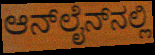
ಆನ್‌ಲೈನ್‌ನಲ್ಲಿ